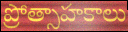
ప్రోత్సాహకాలు